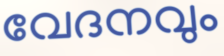
വേദനവും